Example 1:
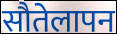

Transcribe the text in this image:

सौतेलापन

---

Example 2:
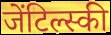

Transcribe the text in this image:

जेंटिल्स्की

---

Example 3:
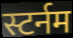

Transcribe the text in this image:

स्टर्नम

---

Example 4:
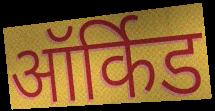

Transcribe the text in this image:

ऑर्किड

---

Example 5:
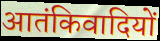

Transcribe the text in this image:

आतंकिवादियों